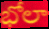
భోలా